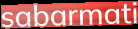
sabarmati